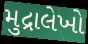
મુદ્રાલેખો